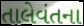
તાલેવંતના